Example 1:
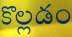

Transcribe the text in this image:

కొల్లడం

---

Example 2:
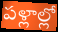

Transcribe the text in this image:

పళ్లాల్లో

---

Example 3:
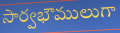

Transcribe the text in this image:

సార్వభౌములుగా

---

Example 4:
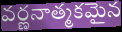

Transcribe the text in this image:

వర్ణనాత్మకమైన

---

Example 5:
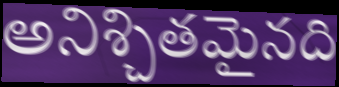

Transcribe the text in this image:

అనిశ్చితమైనది